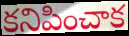
కనిపించాక